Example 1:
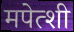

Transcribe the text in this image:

मपेत्शी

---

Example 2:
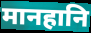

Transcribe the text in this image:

मानहानि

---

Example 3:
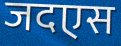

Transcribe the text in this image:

जदएस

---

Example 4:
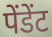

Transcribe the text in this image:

पेंडेंट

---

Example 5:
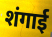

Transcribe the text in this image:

शंगाई